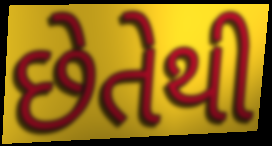
છેતેથી